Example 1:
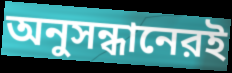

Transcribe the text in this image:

অনুসন্ধানেরই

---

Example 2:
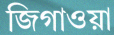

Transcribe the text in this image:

জিগাওয়া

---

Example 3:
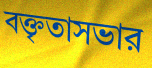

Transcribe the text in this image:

বক্তৃতাসভার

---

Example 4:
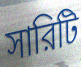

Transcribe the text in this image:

সারিটি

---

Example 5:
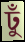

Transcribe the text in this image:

ঢুঁ